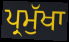
ਪ੍ਰਮੁੱਖਾ